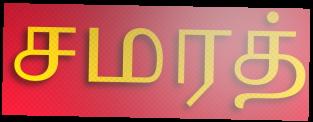
சமரத்